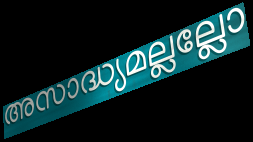
അസാദ്ധ്യമല്ലല്ലോ